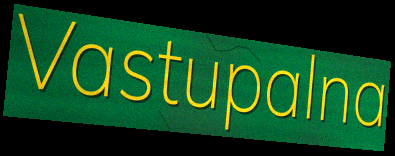
Vastupalna